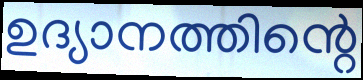
ഉദ്യാനത്തിന്റെ